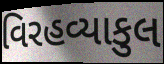
વિરહવ્યાકુલ